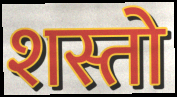
शस्तो